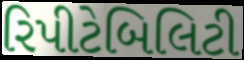
રિપીટેબિલિટી